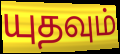
யுதவும்